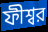
ফীশ্বর